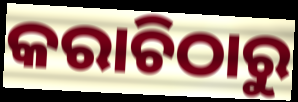
କରାଚିଠାରୁ